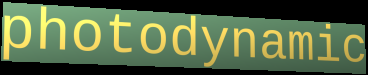
photodynamic